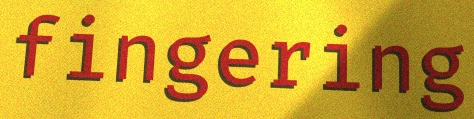
fingering